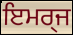
ਇਮਰ੍ਜ